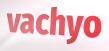
vachyo